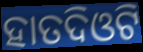
ହାତଦିଓଟି